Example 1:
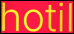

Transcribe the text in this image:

hotil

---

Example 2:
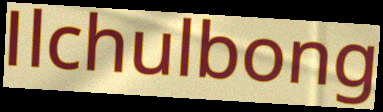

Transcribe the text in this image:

Ilchulbong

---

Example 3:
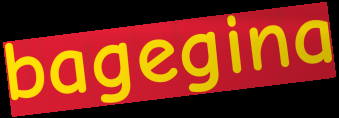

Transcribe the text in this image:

bagegina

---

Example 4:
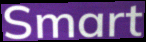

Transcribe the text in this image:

Smart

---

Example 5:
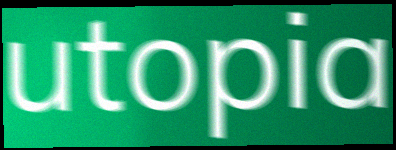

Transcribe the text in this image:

utopia